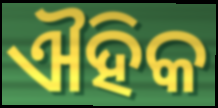
ଐହିକ